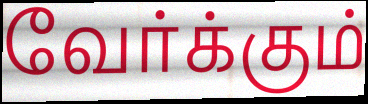
வேர்க்கும்